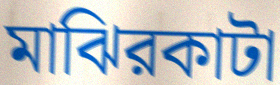
মাঝিরকাটা